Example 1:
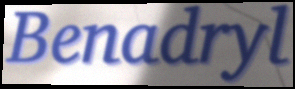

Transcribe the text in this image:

Benadryl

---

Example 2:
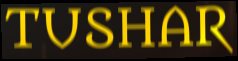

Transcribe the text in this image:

TUSHAR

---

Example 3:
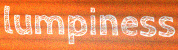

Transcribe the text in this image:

lumpiness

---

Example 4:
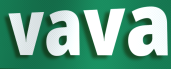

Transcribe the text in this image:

vava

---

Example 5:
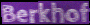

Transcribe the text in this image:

Berkhof